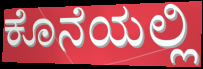
ಕೊನೆಯಲ್ಲಿ